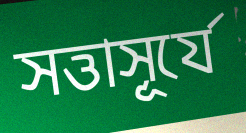
সত্তাসূর্যে